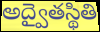
అద్వైతస్థితి